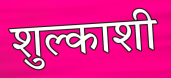
शुल्काशी